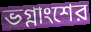
ভগ্নাংশের